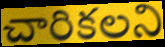
చారికలని